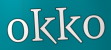
okko